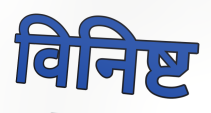
विनिष्ट